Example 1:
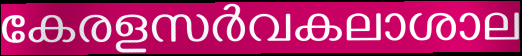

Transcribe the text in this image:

കേരളസർവകലാശാല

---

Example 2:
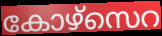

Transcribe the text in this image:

കോഴ്സെറ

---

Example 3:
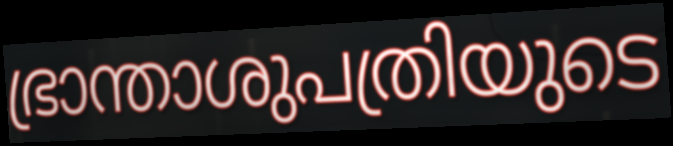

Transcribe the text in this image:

ഭ്രാന്താശുപത്രിയുടെ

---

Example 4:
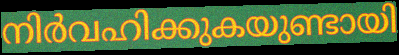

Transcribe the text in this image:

നിർവഹിക്കുകയുണ്ടായി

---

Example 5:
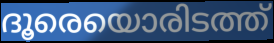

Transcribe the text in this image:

ദൂരെയൊരിടത്ത്